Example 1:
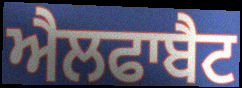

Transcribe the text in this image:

ਐਲਫਾਬੈਟ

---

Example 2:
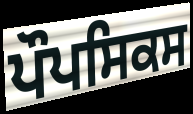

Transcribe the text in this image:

ਪੌਪਸਿਕਸ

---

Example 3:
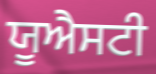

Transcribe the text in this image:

ਯੂਐਸਟੀ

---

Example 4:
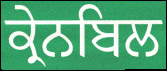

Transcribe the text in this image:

ਕ੍ਰੇਨਬਿਲ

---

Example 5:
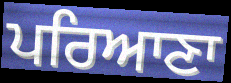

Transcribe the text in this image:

ਪਰਿਆਣਾ